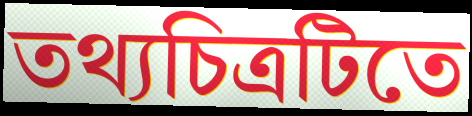
তথ্যচিত্রটিতে